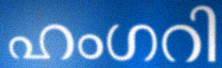
ഹംഗറി